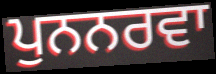
ਪੁਨਨਰਵਾ